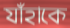
যাঁহাকে